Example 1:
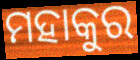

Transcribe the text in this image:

ମହାକୁର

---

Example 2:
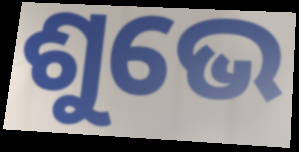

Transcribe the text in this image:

ଶୁଭେ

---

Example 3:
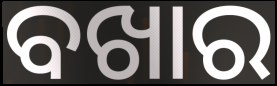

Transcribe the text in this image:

ବଖାର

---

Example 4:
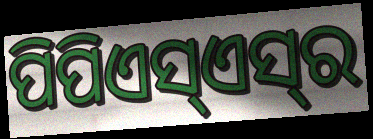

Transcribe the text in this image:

ପିପିଏସ୍ଏସ୍‌ର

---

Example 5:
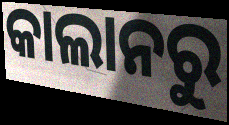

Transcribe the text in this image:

କାଲାନରୁ